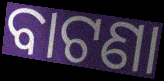
ବାଟଣା